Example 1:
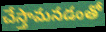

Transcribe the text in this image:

చేస్తామనడంతో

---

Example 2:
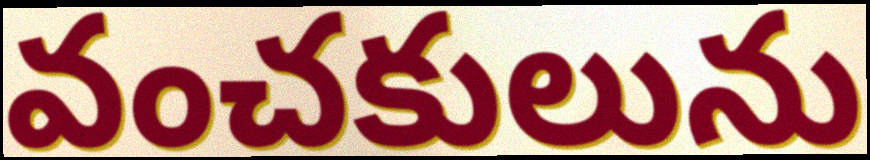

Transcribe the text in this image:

వంచకులును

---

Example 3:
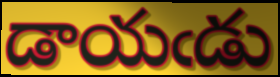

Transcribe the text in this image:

డాయఁడు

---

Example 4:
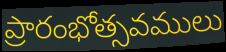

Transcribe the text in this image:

ప్రారంభోత్సవములు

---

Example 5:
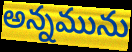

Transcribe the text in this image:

అన్నమును